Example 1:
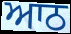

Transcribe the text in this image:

ਆਠ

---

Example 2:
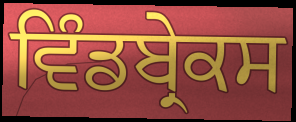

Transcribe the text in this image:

ਵਿੰਡਬ੍ਰੇਕਸ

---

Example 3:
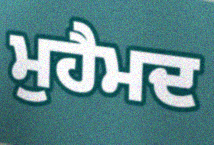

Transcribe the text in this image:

ਮੁਹੈਮਦ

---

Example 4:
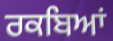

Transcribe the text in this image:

ਰਕਬਿਆਂ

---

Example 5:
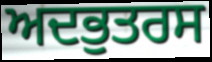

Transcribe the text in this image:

ਅਦਭੁਤਰਸ